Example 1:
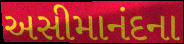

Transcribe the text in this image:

અસીમાનંદના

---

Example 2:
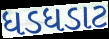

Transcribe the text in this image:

ધડધડાટ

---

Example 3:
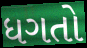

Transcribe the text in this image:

ધગતો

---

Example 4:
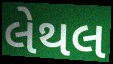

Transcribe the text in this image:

લેથલ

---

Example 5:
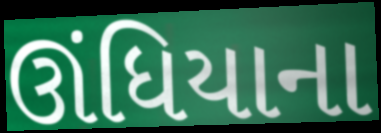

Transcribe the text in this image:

ઊંધિયાના